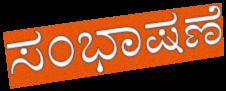
ಸಂಭಾಷಣೆ